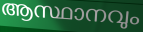
ആസ്ഥാനവും